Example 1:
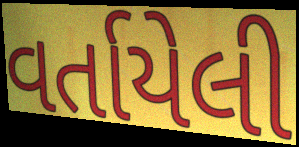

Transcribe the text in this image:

વર્તાયેલી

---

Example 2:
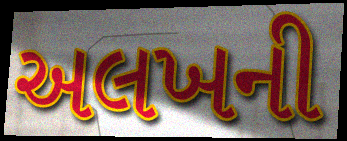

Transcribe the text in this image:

અલખની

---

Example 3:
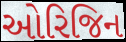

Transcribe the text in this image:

ઓરિજિન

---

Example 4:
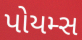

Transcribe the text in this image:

પોયમ્સ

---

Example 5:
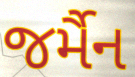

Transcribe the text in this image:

જર્મૈન